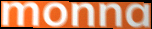
monna